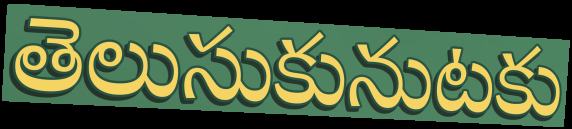
తెలుసుకునుటకు